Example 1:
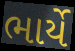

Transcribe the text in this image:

ભાર્યે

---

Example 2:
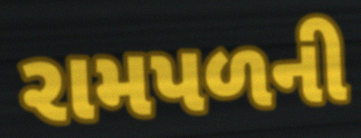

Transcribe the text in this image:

રામપળની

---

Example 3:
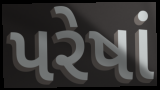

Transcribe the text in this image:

પરેષાં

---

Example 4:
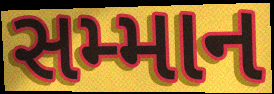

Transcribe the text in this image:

સમ્માન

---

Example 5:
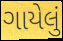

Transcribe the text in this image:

ગાયેલું